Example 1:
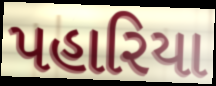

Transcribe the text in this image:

પહારિયા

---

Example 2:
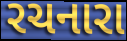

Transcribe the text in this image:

રચનારા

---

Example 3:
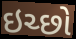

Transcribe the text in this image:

ઇચ્છો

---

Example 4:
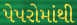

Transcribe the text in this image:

પેપરોમાંથી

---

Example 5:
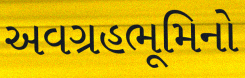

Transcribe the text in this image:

અવગ્રહભૂમિનો